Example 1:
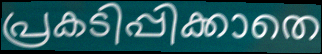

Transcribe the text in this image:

പ്രകടിപ്പിക്കാതെ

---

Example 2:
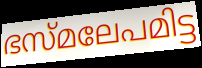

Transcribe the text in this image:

ഭസ്മലേപമിട്ട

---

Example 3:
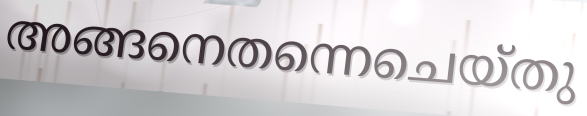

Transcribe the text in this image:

അങ്ങനെതന്നെചെയ്തു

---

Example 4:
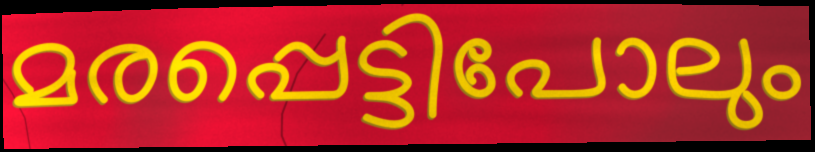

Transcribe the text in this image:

മരപ്പെട്ടിപോലും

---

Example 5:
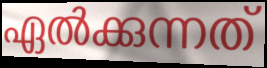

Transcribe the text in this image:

ഏൽക്കുന്നത്